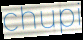
chupi